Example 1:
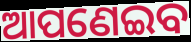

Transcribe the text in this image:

ଆପଣେଇବ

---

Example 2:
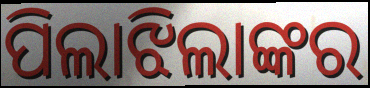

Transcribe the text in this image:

ପିଲାଝିଲାଙ୍କର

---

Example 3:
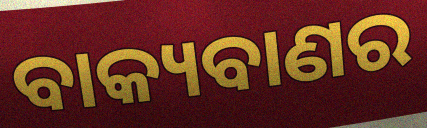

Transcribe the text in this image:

ବାକ୍ୟବାଣର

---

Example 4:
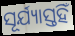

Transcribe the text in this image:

ସୂର୍ଯ୍ୟାସ୍ତହିଁ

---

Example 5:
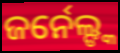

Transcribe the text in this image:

ଜର୍ନେଲ୍ଙ୍କ